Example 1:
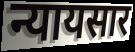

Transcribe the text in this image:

न्यायसार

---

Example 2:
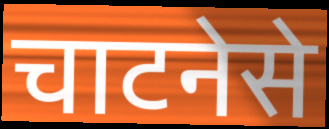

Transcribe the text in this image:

चाटनेसे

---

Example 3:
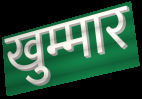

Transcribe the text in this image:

खुम्मार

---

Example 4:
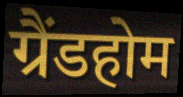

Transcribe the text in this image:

ग्रैंडहोम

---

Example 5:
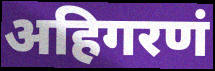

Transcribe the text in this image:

अहिगरणं